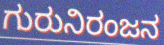
ಗುರುನಿರಂಜನ